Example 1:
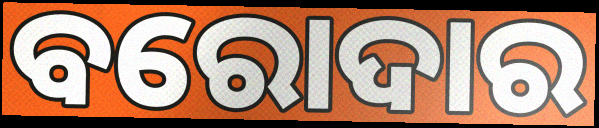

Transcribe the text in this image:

ବରୋଦାର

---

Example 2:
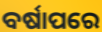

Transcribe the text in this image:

ବର୍ଷାପରେ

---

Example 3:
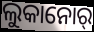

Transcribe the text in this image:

ଲୁକାନୋର୍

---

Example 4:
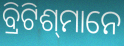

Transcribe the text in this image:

ବ୍ରିଟିଶ୍‌ମାନେ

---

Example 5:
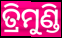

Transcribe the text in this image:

ତ୍ରିମୁଣ୍ଡି